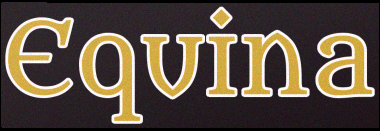
Equina